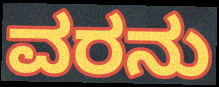
ವರನು